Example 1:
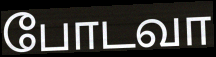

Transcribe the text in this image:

போடவா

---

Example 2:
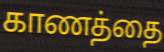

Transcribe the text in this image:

காணத்தை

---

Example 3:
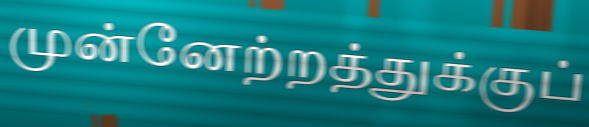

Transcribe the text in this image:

முன்னேற்றத்துக்குப்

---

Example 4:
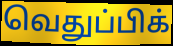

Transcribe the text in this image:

வெதுப்பிக்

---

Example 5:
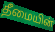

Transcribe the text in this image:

தீமையின்